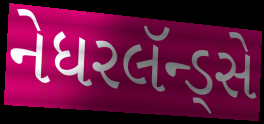
નેધરલૅન્ડ્સે